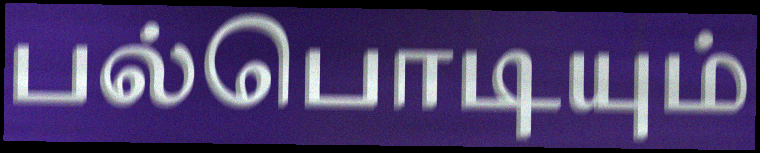
பல்பொடியும்